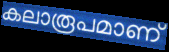
കലാരൂപമാണ്